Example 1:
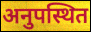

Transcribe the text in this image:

अनुपस्थित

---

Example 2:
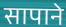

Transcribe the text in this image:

सापाने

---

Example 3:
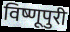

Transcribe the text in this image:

विष्णूपुरी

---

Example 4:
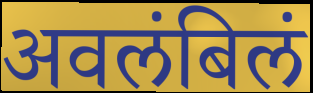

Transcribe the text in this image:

अवलंबिलं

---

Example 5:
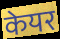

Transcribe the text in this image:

केयर